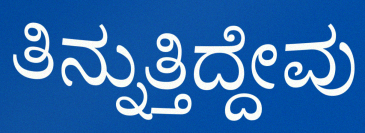
ತಿನ್ನುತ್ತಿದ್ದೇವು